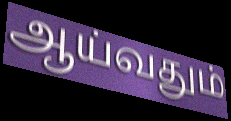
ஆய்வதும்